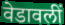
वेडावलीं